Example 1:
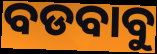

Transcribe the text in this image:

ବଡବାବୁ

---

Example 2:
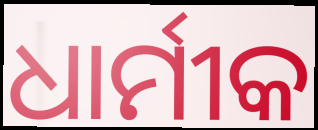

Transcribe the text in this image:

ଧାର୍ମୀକ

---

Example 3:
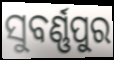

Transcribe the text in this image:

ସୁବର୍ଣ୍ଣପୁର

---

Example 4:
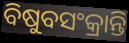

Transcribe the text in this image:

ବିଷୁବସଂକ୍ରାନ୍ତି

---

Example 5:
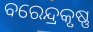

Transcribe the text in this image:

ବରେନ୍ଦ୍ରକୃଷ୍ଣ